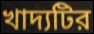
খাদ্যটির